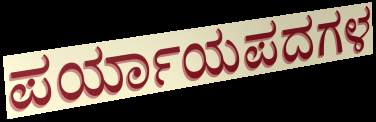
ಪರ್ಯಾಯಪದಗಳ